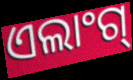
ଏଲାଂଗ୍